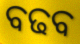
ବଢବ